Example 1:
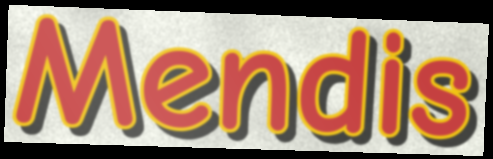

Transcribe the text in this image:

Mendis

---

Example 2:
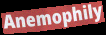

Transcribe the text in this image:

Anemophily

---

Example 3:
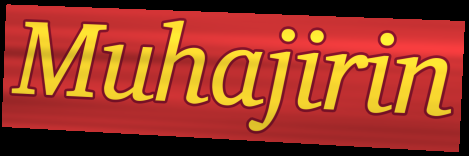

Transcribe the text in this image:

Muhajirin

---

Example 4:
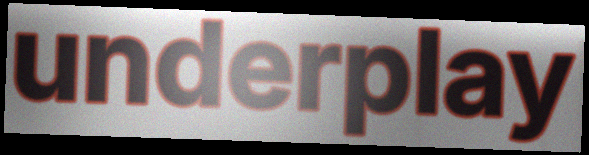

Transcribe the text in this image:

underplay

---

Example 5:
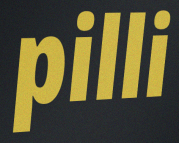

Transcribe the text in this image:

pilli